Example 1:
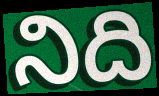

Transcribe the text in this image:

నిది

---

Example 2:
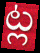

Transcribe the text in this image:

ట్ల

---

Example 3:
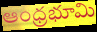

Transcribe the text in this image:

ఆంధ్రభూమి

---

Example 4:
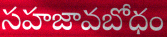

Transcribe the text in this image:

సహజావబోధం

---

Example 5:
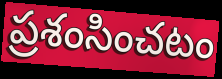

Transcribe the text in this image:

ప్రశంసించటం